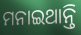
ମନାଇଥାନ୍ତି